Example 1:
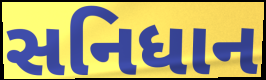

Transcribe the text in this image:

સનિધાન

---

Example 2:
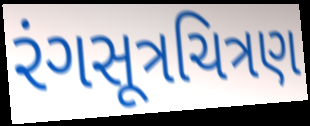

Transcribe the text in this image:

રંગસૂત્રચિત્રણ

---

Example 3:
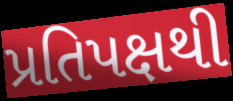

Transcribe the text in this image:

પ્રતિપક્ષથી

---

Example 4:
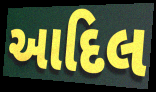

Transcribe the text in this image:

આદિલ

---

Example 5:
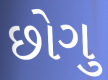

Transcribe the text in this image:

છોગુ